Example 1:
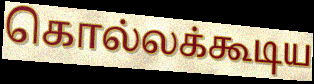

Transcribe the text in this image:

கொல்லக்கூடிய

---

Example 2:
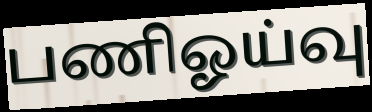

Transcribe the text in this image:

பணிஓய்வு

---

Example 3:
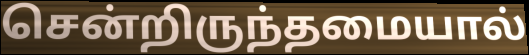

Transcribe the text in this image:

சென்றிருந்தமையால்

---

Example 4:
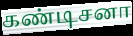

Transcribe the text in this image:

கண்டிசனா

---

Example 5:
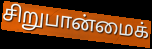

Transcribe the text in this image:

சிறுபான்மைக்